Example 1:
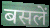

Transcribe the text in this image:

बसलें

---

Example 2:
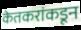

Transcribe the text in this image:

केतकरांकडून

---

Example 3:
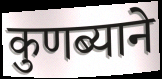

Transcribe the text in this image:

कुणब्याने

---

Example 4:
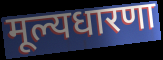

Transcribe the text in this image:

मूल्यधारणा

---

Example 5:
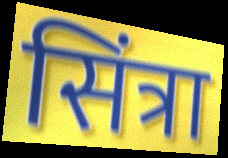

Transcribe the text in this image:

सिंत्रा